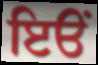
ਇੳਂ